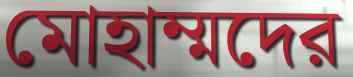
মোহাম্মদের